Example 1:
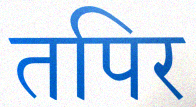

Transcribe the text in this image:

तपिर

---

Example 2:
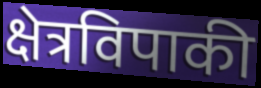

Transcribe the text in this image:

क्षेत्रविपाकी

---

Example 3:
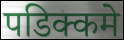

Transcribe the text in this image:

पडिक्कमे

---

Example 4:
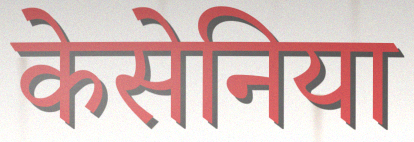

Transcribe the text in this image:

केसेनिया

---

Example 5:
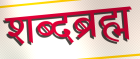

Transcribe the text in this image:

शब्दब्रह्म